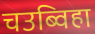
चउब्विहा